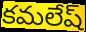
కమలేష్